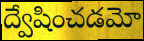
ద్వేషించడమో